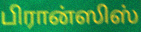
பிரான்ஸிஸ்